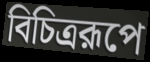
বিচিত্ররূপে